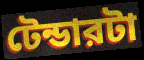
টেন্ডারটা